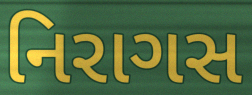
નિરાગસ